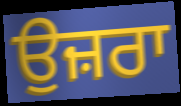
ਉਜ਼ਰਾ